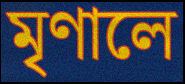
মৃণালে